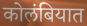
कोलंबियात